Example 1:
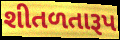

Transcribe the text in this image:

શીતળતારૂપ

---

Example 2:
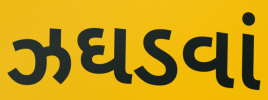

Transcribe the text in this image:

ઝઘડવાં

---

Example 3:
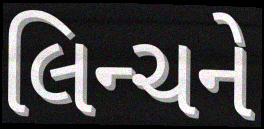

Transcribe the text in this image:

લિન્ચને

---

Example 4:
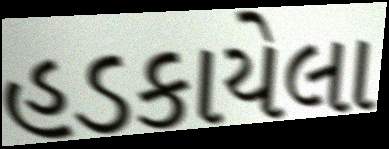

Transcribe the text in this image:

હડકાયેલા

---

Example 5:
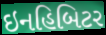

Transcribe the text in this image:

ઇનહિબિટર